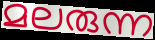
മലരുന്ന